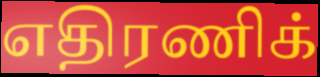
எதிரணிக்